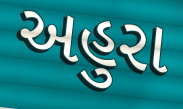
અહુરા